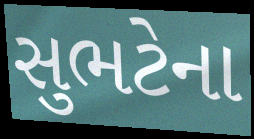
સુભટેના